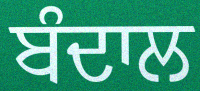
ਬੰਦਾਲ